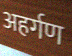
अहर्गण